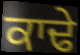
ਕਾਢੇ